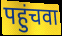
पहुंचवा